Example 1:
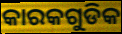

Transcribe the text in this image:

କାରକଗୁଡିକ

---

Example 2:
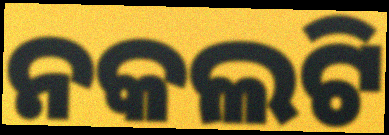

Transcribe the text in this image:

ନକଲଟି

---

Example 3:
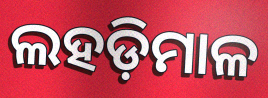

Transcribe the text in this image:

ଲହଡ଼ିମାଳ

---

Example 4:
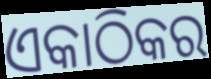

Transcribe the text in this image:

ଏକାଠିକର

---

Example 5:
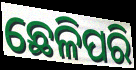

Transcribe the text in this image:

ଛେଳିପରି